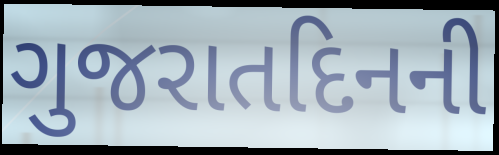
ગુજરાતદિનની